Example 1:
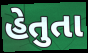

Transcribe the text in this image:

હેતુતા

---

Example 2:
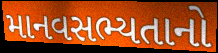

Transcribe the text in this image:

માનવસભ્યતાનો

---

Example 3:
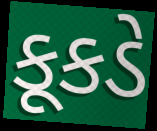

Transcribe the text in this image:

કૂકડે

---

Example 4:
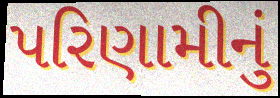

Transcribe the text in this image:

પરિણામીનું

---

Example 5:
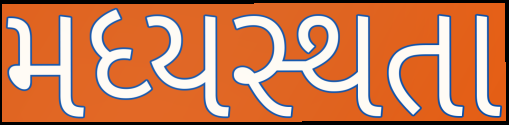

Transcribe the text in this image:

મધ્યસ્થતા